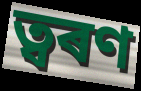
ত্বৰণ